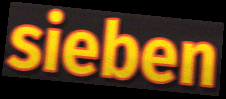
sieben